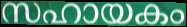
സഹായകം